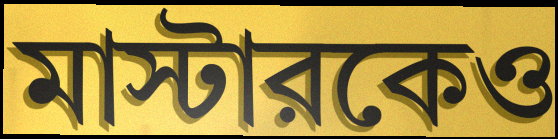
মাস্টারকেও